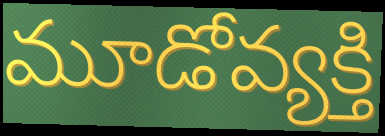
మూడోవ్యక్తి